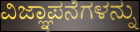
ವಿಜ್ಞಾಪನೆಗಳನ್ನು